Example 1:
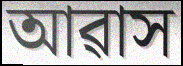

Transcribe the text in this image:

আৱাস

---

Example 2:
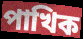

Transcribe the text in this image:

পাখিক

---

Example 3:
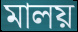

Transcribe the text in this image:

মালয়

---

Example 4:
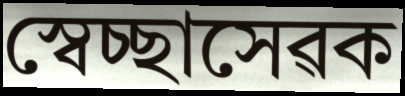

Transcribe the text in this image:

স্বেচ্ছাসেৱক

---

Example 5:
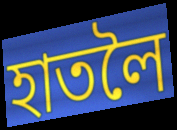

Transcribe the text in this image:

হাতলৈ